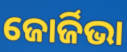
ଜୋର୍ଜିଭା